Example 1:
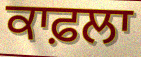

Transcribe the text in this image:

ਕਾਫ਼ਲਾ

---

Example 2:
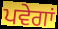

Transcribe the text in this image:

ਪਵੇਗਾਂ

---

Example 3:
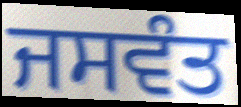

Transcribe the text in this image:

ਜਸਵੰਤ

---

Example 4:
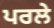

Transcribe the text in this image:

ਪਰਲੇ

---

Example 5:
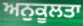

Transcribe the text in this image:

ਅਨੁਕੂਲਤਾ